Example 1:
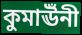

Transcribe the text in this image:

কুমাঊঁনী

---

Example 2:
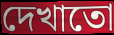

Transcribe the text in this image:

দেখাতো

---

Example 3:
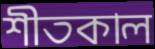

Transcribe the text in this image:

শীতকাল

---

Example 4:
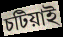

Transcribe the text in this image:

চটিয়াই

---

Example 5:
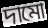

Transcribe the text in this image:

দামো